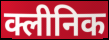
क्लीनिक